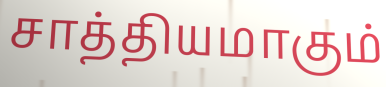
சாத்தியமாகும்